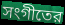
সংগীতের